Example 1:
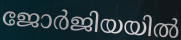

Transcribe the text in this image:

ജോർജിയയിൽ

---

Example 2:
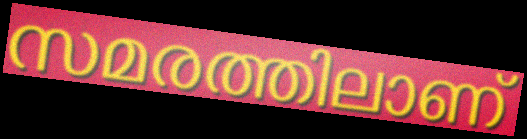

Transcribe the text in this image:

സമരത്തിലാണ്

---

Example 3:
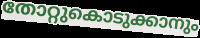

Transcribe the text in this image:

തോറ്റുകൊടുക്കാനും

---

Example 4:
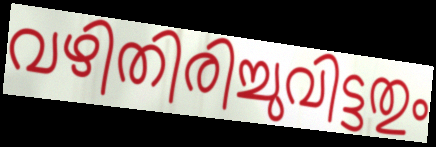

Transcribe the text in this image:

വഴിതിരിച്ചുവിട്ടതും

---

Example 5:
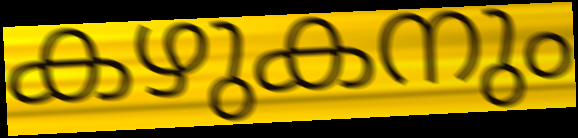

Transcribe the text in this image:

കഴുകനും